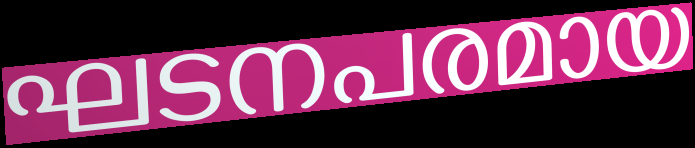
ഘടനപരമായ